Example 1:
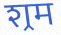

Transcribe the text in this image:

श्रम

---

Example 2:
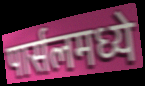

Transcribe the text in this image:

पार्सलमध्ये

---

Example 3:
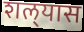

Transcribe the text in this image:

शल्यास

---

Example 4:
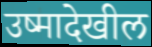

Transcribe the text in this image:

उष्मादेखील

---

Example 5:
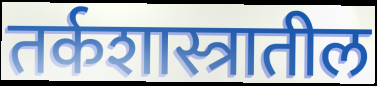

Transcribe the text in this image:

तर्कशास्त्रातील